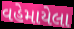
વહેમાયેલા